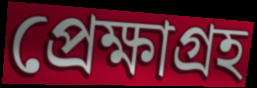
প্রেক্ষাগ্রহ